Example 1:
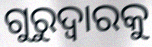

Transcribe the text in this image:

ଗୁରୁଦ୍ୱାରକୁ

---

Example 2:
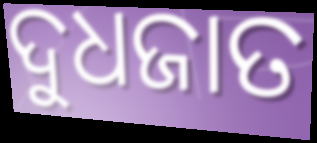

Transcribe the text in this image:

ଦୁଧଜାତ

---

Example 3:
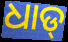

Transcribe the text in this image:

ଧାଡ୍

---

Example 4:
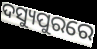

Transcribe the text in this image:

ଦସ୍ୟୁପୁରରେ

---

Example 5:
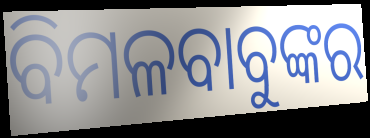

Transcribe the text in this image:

ବିମଳବାବୁଙ୍କର